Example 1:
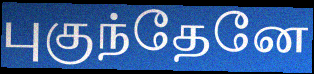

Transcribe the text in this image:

புகுந்தேனே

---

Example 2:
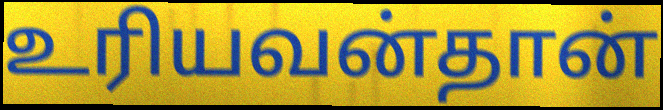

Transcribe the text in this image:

உரியவன்தான்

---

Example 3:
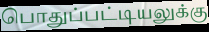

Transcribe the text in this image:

பொதுப்பட்டியலுக்கு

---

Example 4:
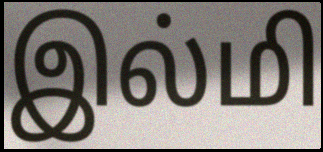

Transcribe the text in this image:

இல்மி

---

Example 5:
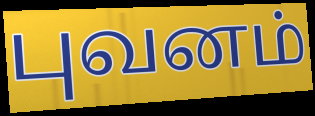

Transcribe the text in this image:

புவனம்